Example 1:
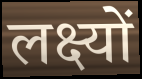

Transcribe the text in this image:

लक्ष्‍यों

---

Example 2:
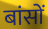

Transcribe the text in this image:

बांसों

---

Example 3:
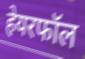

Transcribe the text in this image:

हेयरफॉल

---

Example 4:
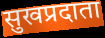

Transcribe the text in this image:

सुखप्रदाता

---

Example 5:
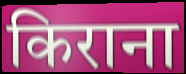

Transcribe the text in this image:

किराना